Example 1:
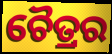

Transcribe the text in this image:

ଚୈତ୍ରର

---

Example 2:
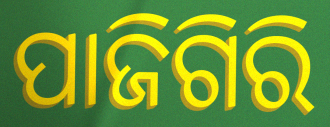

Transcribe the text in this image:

ପାଜିଗିରି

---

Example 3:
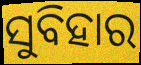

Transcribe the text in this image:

ସୁବିହାର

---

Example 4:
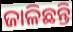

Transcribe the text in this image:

ଜାଳିଛନ୍ତି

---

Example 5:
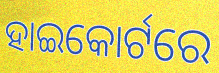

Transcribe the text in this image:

ହାଇକୋର୍ଟରେ